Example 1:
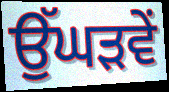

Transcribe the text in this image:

ਉੱਘੜਵੇਂ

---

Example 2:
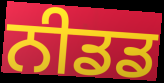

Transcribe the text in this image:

ਨੀਡਡ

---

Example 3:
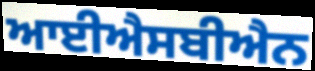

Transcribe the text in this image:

ਆਈਐਸਬੀਐਨ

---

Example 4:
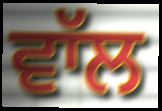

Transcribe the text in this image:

ਵਾੱਲ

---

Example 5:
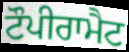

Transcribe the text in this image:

ਟੌਪੀਰਾਮੈਟ